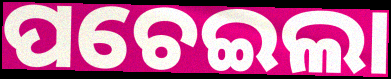
ପଚେଇଲା